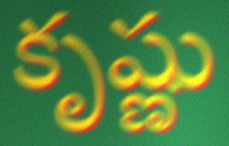
కృష్ణు